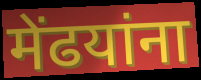
मेंढयांना